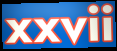
xxvii